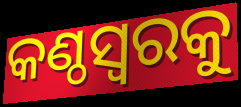
କଣ୍ଠସ୍ୱରକୁ